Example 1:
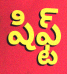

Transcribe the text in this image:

షిఫ్ట్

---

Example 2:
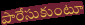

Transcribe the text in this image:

పారేసుకుంటూ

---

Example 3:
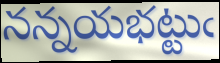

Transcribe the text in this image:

నన్నయభట్టుఁ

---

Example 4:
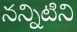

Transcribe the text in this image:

నన్నిటిని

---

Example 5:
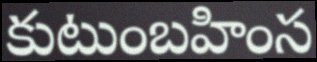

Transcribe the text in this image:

కుటుంబహింస